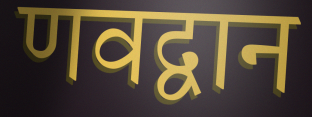
णवद्वान